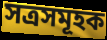
সত্ৰসমূহক